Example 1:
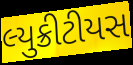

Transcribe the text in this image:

લ્યુક્રીટીયસ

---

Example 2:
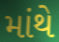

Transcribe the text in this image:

માંથે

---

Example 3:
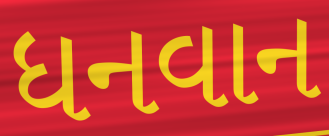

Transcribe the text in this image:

ધનવાન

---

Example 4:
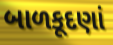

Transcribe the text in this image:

બાળકૂદણાં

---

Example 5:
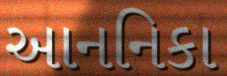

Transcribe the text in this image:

આનનિકા